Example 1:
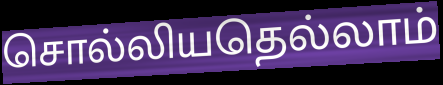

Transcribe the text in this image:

சொல்லியதெல்லாம்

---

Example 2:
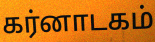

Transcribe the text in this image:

கர்னாடகம்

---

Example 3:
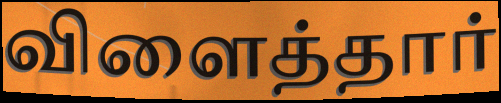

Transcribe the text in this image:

விளைத்தார்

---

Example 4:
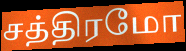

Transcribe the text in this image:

சத்திரமோ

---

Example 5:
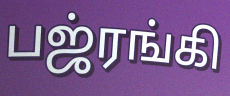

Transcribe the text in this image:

பஜ்ரங்கி